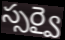
స్సర్వై